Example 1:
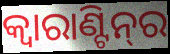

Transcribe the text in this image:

କ୍ବାରାଣ୍ଟିନ୍‌ର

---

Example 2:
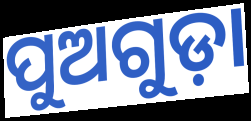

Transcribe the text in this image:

ପୁଅଗୁଡ଼ା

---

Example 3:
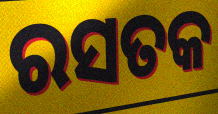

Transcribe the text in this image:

ରସତକ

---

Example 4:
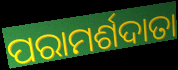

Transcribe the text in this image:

ପରାମର୍ଶଦାତା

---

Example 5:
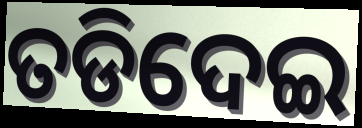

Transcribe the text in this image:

ତଡିଦେଇ